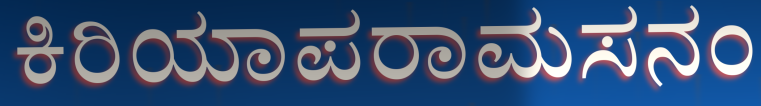
ಕಿರಿಯಾಪರಾಮಸನಂ